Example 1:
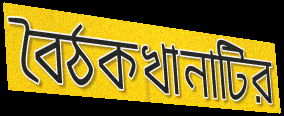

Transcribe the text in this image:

বৈঠকখানাটির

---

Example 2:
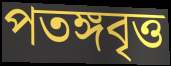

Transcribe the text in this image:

পতঙ্গবৃত্ত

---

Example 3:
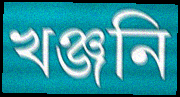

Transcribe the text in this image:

খঞ্জনি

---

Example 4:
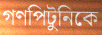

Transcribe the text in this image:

গণপিটুনিকে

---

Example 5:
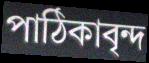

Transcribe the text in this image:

পাঠিকাবৃন্দ